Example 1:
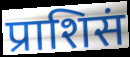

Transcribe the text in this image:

प्राशिसं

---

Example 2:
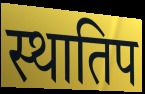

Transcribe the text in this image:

स्थातिप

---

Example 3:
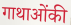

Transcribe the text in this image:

गाथाओंकी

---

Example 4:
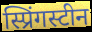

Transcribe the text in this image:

स्प्रिंगस्टीन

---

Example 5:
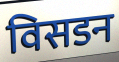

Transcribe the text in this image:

विसडन